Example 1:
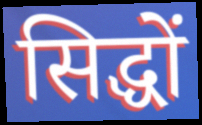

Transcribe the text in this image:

सिद्धों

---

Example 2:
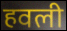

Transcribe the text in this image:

हवली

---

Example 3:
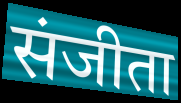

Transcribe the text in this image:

संजीता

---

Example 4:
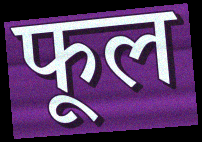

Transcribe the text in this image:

फूल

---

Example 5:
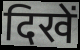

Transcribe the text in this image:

दिखें